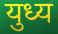
युध्य